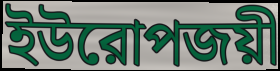
ইউরোপজয়ী